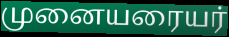
முனையரையர்